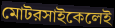
মোটরসাইকেলেই